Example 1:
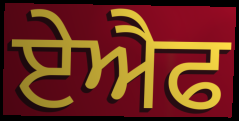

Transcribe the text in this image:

ਏਐਫ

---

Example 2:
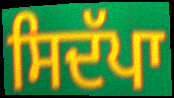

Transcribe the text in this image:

ਸਿਦੱਪਾ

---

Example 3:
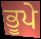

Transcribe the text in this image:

ਭੂਪੇ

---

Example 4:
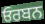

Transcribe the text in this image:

ਓਰਬਨ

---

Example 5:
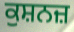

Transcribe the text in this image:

ਕੁਸ਼ਨਜ਼